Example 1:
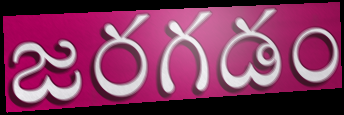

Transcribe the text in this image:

జరగడం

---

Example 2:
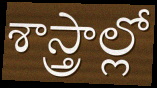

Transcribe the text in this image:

శాస్త్రాల్లో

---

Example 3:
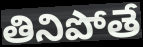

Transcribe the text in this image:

తినిపోతే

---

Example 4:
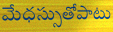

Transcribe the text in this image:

మేధస్సుతోపాటు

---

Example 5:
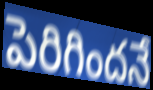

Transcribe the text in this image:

పెరిగిందనే